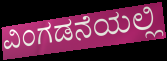
ವಿಂಗಡನೆಯಲ್ಲಿ